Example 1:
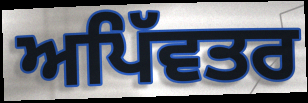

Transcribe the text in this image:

ਅਪਿੱਵਤਰ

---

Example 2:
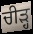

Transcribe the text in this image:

ਚੀੜ੍ਹ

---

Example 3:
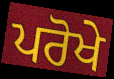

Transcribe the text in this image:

ਪਰੋਖੇ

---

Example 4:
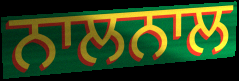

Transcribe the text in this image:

ਨਾਲਨਾਲ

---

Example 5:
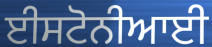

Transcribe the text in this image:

ਈਸਟੋਨੀਆਈ